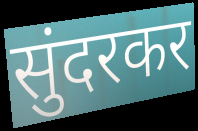
सुंदरकर